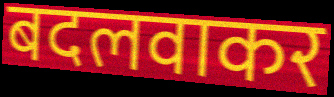
बदलवाकर